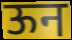
ऊन